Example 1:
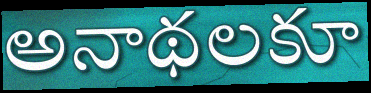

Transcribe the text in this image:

అనాథలకూ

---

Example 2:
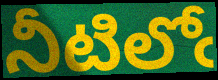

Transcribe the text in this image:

నీటిలోఁ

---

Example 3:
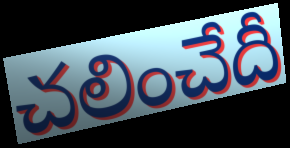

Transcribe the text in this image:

చలించేదీ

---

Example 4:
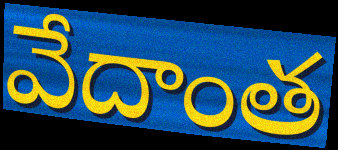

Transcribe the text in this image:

వేదాంత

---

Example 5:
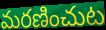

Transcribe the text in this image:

మరణించుట